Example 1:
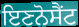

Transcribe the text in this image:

ਇਣਨੋਸੈਂਟ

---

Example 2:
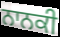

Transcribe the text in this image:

ਨਾਨਕੀ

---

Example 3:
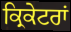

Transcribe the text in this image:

ਕ੍ਰਿਕੇਟਰਾਂ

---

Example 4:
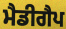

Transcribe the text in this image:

ਮੈਡੀਗੈਪ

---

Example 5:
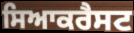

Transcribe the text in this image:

ਸਿਆਕਰੈਸਟ